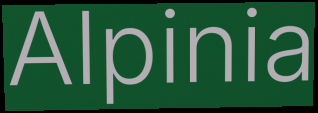
Alpinia